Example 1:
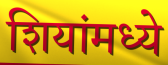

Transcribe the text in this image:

शियांमध्ये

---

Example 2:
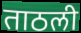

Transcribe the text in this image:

ताठली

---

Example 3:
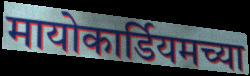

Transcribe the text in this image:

मायोकार्डियमच्या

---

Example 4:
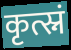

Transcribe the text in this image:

कृत्स्नं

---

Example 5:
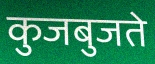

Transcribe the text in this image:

कुजबुजते